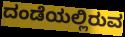
ದಂಡೆಯಲ್ಲಿರುವ